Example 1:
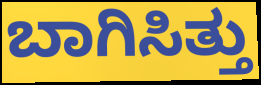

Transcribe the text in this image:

ಬಾಗಿಸಿತ್ತು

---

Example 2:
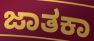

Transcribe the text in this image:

ಜಾತಕಾ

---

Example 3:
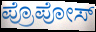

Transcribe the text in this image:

ಪ್ರೊಪೋಸ್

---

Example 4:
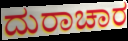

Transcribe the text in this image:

ದುರಾಚಾರ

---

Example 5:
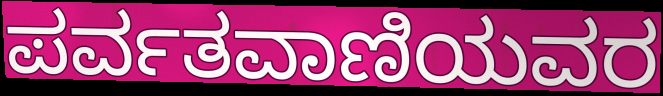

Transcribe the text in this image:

ಪರ್ವತವಾಣಿಯವರ